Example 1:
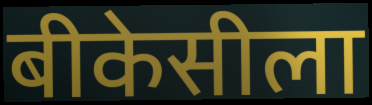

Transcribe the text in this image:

बीकेसीला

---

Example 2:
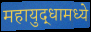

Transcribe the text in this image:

महायुद्धामध्ये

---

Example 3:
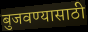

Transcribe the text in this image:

बुजवण्यासाठी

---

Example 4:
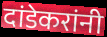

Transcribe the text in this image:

दांडेकरांनी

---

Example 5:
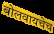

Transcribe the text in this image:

बोलवायचेच